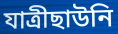
যাত্রীছাউনি